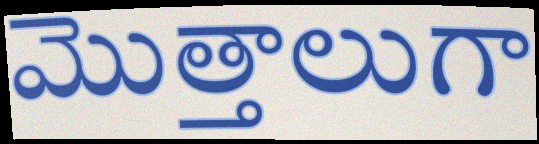
మొత్తాలుగా